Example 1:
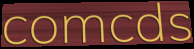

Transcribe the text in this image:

comcds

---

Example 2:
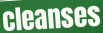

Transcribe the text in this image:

cleanses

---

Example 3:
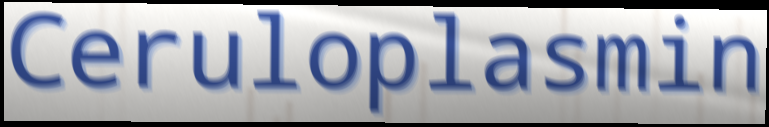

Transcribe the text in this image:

Ceruloplasmin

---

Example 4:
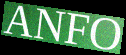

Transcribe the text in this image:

ANFO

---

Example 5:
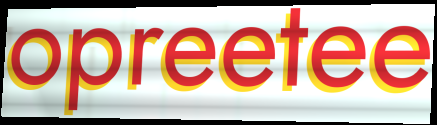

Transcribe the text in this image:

opreetee